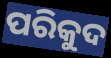
ପରିକୁଦ